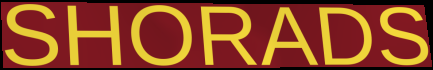
SHORADS